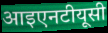
आइएनटीयूसी